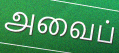
அவைப்